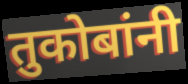
तुकोबांनी